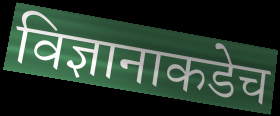
विज्ञानाकडेच